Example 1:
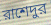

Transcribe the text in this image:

রাশেদুর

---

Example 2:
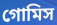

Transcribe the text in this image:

গোমিস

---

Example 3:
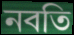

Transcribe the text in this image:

নবতি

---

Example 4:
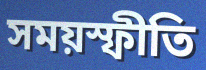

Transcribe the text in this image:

সময়স্ফীতি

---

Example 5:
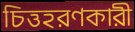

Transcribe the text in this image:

চিত্তহরণকারী